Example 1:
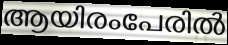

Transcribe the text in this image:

ആയിരംപേരിൽ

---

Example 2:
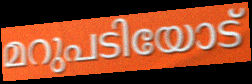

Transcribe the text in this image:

മറുപടിയോട്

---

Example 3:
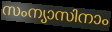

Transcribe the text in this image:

സംന്യാസിനാം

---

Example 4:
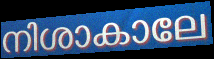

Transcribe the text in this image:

നിശാകാലേ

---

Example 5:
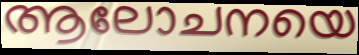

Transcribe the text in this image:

ആലോചനയെ